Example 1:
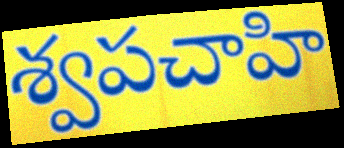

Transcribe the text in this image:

శ్వపచాహి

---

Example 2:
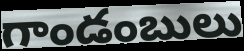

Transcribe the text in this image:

గాండంబులు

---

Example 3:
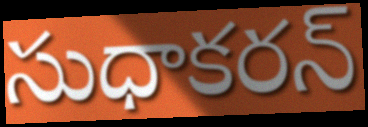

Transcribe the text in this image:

సుధాకరన్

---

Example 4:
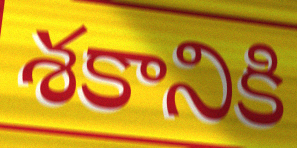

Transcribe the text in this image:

శకానికి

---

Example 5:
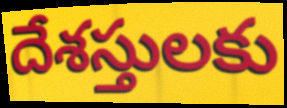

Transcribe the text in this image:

దేశస్తులకు